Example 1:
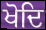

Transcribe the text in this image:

ਖੋਦਿ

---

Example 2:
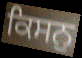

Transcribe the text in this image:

ਕਿਸਨੁ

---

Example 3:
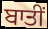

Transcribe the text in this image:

ਬਾਤੀਂ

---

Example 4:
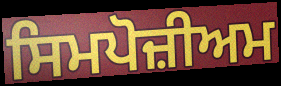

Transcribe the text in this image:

ਸਿਮਪੋਜ਼ੀਅਮ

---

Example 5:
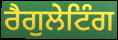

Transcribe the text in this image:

ਰੈਗੁਲੇਟਿੰਗ